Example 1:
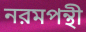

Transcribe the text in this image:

নরমপন্থী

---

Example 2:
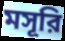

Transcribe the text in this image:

মসূরি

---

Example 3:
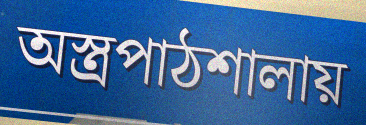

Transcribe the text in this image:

অস্ত্রপাঠশালায়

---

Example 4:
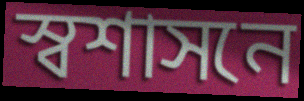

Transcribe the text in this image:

স্বশাসনে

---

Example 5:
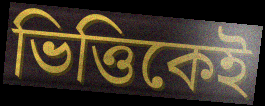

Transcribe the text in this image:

ভিত্তিকেই